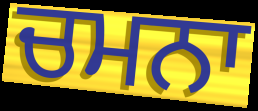
ਚਮਨਾ